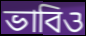
ভাবিও